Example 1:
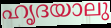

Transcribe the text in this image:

ഹൃദയാലു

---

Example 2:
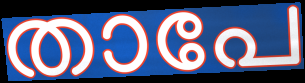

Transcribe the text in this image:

താപേ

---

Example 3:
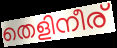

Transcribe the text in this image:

തെളിനീര്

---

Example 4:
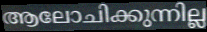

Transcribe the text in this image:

ആലോചിക്കുന്നില്ല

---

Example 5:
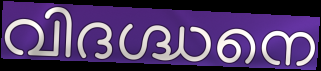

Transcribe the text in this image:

വിദഗ്ദ്ധനെ